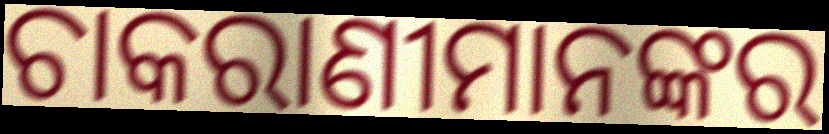
ଚାକରାଣୀମାନଙ୍କର